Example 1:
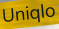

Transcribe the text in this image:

Uniqlo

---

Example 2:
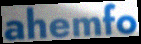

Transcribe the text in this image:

ahemfo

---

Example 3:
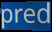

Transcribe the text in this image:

pred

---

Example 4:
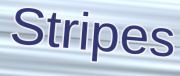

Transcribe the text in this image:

Stripes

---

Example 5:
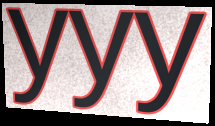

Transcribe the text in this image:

yyy